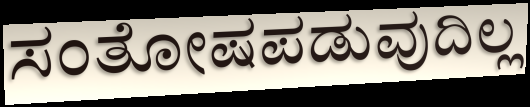
ಸಂತೋಷಪಡುವುದಿಲ್ಲ